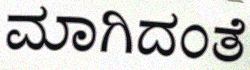
ಮಾಗಿದಂತೆ